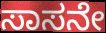
ಸಾಸನೇ